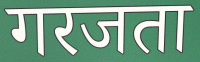
गरजता